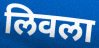
लिवला